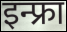
इन्फ्रा